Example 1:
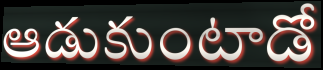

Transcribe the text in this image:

ఆడుకుంటాడో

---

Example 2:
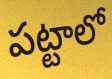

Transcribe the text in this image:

పట్టాలో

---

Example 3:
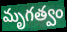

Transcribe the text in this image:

మృగత్వం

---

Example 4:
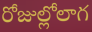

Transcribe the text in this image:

రోజుల్లోలాగ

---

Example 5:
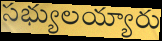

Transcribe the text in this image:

సభ్యులయ్యారు